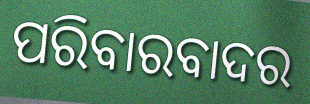
ପରିବାରବାଦର